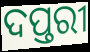
ଦପ୍ତରୀ